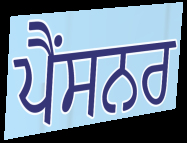
ਪੈਂਸਨਰ